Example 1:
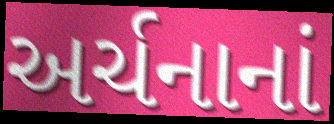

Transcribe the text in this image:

અર્ચનાનાં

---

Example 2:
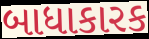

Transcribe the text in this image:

બાધાકારક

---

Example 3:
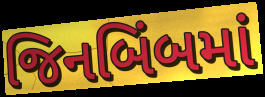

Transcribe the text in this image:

જિનબિંબમાં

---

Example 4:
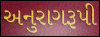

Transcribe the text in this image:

અનુરાગરૂપી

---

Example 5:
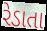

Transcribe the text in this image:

રેડાતા